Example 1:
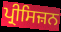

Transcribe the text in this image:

ਪ੍ਰੀਸਿਜ਼ਨ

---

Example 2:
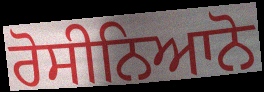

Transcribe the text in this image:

ਰੋਸੀਨਿਆਨੋ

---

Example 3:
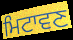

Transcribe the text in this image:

ਮਿਟਾਵਣ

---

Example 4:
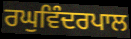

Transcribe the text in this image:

ਰਘੁਵਿੰਦਰਪਾਲ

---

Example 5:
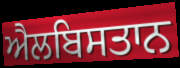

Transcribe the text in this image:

ਐਲਬਿਸਤਾਨ